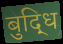
बुद्धि